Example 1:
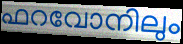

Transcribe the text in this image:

ഫറവോനിലും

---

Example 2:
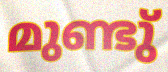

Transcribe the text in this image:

മുണ്ടു്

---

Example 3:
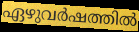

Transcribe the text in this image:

ഏഴുവർഷത്തിൽ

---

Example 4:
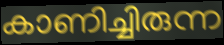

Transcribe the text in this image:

കാണിച്ചിരുന്ന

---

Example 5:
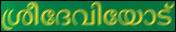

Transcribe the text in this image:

ശ്രീദേവിയോട്